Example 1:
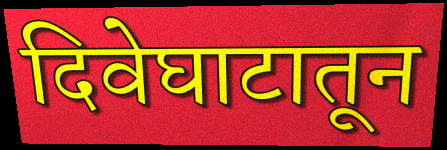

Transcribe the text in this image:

दिवेघाटातून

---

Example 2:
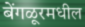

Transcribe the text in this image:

बेंगळूरमधील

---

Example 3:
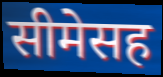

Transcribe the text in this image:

सीमेसह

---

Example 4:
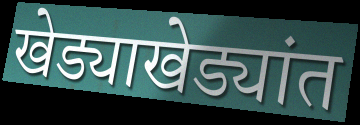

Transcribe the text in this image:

खेड्याखेड्यांत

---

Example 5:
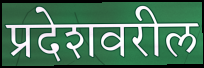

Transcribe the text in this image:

प्रदेशवरील